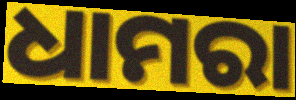
ଧାମରା